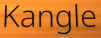
Kangle